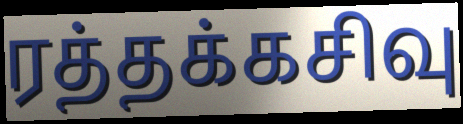
ரத்தக்கசிவு